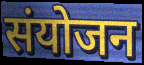
संयोजन